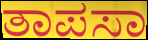
ತಾಪಸಾ